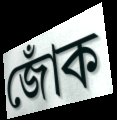
জোঁক